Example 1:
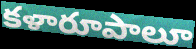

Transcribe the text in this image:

కళారూపాలూ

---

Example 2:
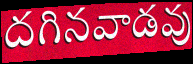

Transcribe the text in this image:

దగినవాడవు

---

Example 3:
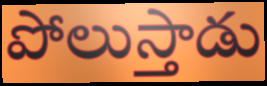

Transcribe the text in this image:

పోలుస్తాడు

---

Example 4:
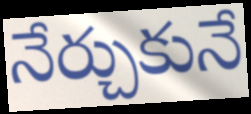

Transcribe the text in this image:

నేర్చుకునే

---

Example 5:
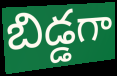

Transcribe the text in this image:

బిడ్డగా